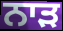
ਨਾੜ